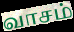
வாசம்